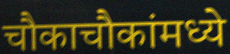
चौकाचौकांमध्ये